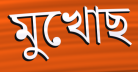
মুখোছ